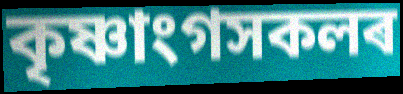
কৃষ্ণাংগসকলৰ